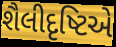
શૈલીદૃષ્ટિએ